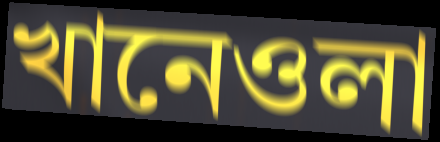
খানেওলা